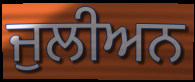
ਜੁਲੀਅਨ